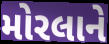
મોરલાને